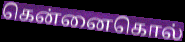
கென்னைகொல்